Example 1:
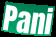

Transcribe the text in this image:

Pani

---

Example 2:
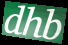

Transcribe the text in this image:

dhb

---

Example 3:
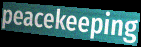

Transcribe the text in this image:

peacekeeping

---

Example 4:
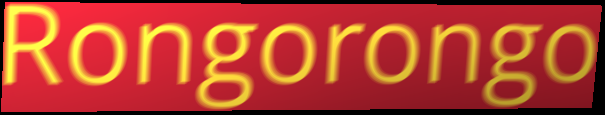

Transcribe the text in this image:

Rongorongo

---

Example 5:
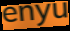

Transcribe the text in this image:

enyu